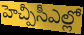
హెచ్పీసీఎల్లో